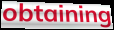
obtaining